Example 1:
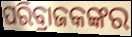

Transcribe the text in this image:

ପରିବ୍ରାଜକଙ୍କର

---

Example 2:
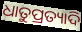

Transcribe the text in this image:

ଧାତୁପ୍ରତ୍ୟାଦି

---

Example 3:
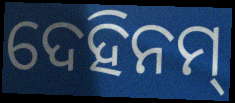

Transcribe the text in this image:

ଦେହିନମ୍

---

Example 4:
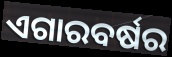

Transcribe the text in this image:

ଏଗାରବର୍ଷର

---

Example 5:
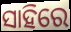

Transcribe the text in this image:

ସାହିରେ